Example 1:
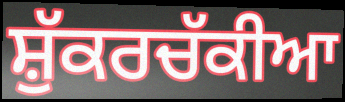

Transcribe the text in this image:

ਸ਼ੁੱਕਰਚੱਕੀਆ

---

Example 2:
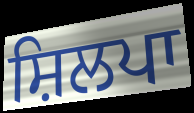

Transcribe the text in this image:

ਸ਼ਿਲਪਾ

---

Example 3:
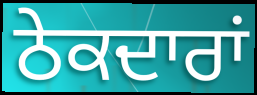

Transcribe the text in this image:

ਠੇਕਦਾਰਾਂ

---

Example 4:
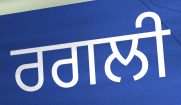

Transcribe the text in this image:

ਰਗਲੀ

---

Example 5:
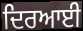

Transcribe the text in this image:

ਦਿਰਆਈ